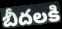
బీదలకి